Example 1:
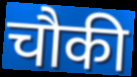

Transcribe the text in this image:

चौकी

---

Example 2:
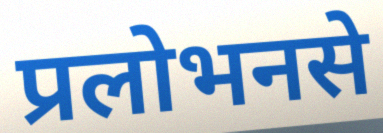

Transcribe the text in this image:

प्रलोभनसे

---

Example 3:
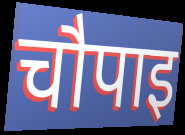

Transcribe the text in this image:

चौपाइ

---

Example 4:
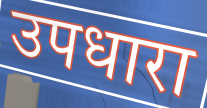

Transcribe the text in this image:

उपधारा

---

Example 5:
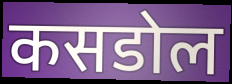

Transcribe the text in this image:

कसडोल